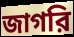
জাগরি